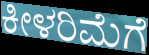
ಕೀಳರಿಮೆಗೆ